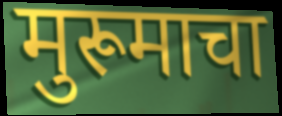
मुरूमाचा